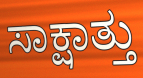
ಸಾಕ್ಷಾತ್ತು